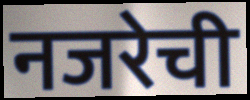
नजरेची